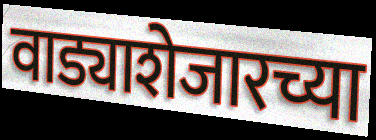
वाड्याशेजारच्या